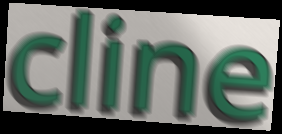
cline